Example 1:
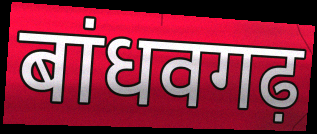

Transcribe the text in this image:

बांधवगढ़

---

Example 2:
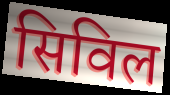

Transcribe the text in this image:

सिविल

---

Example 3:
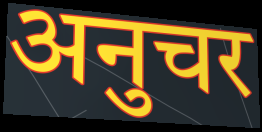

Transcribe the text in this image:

अनुचर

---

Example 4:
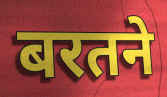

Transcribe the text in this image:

बरतने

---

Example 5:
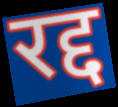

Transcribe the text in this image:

रद्द